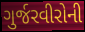
ગુર્જરવીરોની